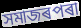
সমাজৰপৰা